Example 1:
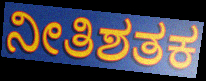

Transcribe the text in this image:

ನೀತಿಶತಕ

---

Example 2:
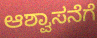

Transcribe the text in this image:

ಆಶ್ವಾಸನೆಗೆ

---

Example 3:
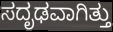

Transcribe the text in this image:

ಸದೃಢವಾಗಿತ್ತು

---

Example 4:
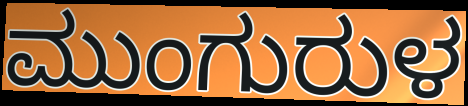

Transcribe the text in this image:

ಮುಂಗುರುಳ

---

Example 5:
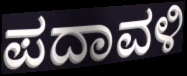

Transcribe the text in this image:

ಪದಾವಳಿ